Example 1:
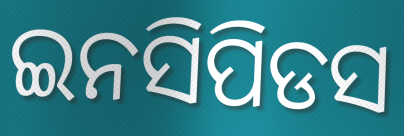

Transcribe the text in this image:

ଇନସିପିଡସ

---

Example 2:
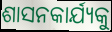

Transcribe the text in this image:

ଶାସନକାର୍ଯ୍ୟକୁ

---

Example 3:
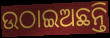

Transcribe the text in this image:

ଉଠାଇଅଛନ୍ତି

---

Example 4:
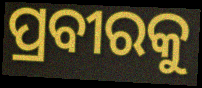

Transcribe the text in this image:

ପ୍ରବୀରକୁ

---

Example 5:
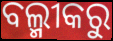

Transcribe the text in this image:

ବଲ୍ମୀକରୁ